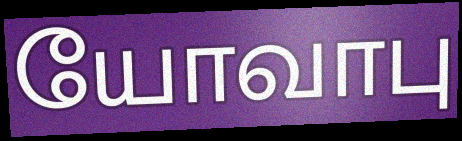
யோவாபு